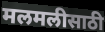
मलमलीसाठी